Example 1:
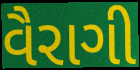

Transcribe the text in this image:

વૈરાગી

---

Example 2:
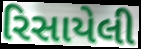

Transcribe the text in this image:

રિસાયેલી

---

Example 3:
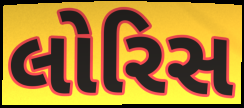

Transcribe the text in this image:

લોરિસ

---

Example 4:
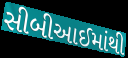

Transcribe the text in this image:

સીબીઆઈમાંથી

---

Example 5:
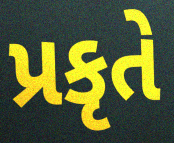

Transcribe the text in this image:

પ્રકૃતે